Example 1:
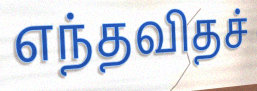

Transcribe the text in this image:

எந்தவிதச்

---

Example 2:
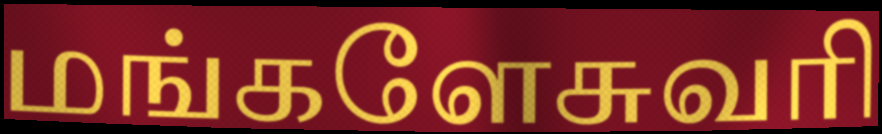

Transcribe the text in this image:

மங்களேசுவரி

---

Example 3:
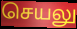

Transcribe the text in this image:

செயலு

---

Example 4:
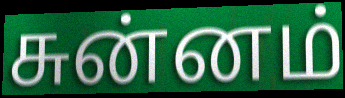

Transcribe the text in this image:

சுன்னம்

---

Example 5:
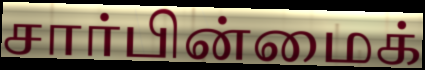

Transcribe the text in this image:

சார்பின்மைக்